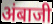
अंबाजी